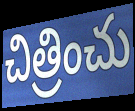
చిత్రించు